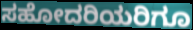
ಸಹೋದರಿಯರಿಗೂ